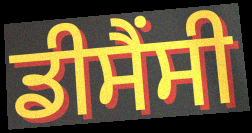
ਡੀਸੈਂਸੀ